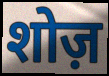
शोज़